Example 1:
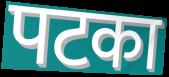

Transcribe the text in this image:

पटका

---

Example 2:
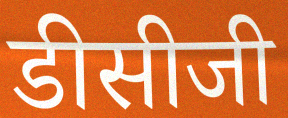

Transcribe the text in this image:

डीसीजी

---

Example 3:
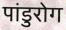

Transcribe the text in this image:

पांडुरोग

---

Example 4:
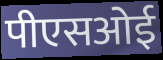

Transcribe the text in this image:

पीएसओई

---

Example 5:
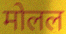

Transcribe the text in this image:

मोलल